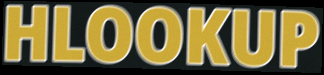
HLOOKUP